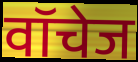
वॉचेज